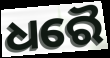
ଧରୈ